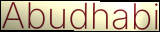
Abudhabi